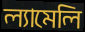
ল্যামেলি